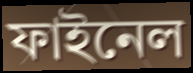
ফাইনেল